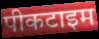
पीकटाइम